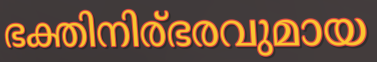
ഭക്തിനിര്ഭരവുമായ